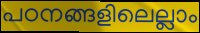
പഠനങ്ങളിലെല്ലാം